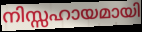
നിസ്സഹായമായി